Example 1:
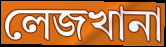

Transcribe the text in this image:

লেজখানা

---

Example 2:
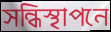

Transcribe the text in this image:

সন্ধিস্থাপনে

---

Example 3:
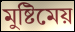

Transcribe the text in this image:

মুষ্টিমেয়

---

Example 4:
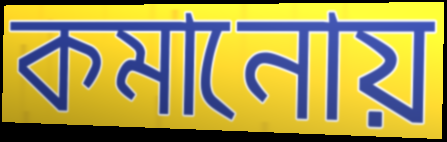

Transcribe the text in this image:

কমানোয়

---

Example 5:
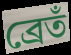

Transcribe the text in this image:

ব্রেতঁ